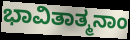
ಭಾವಿತಾತ್ಮನಾಂ